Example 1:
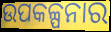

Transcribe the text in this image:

ଉପକଳ୍ପନାର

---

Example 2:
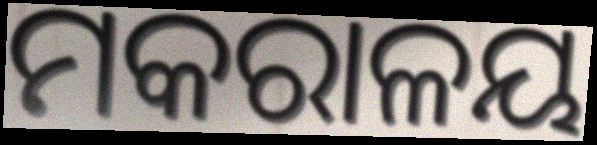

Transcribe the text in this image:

ମକରାଳୟ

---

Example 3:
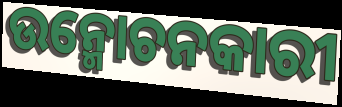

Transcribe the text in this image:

ଉନ୍ମୋଚନକାରୀ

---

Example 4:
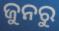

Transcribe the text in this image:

ଜୁନରୁ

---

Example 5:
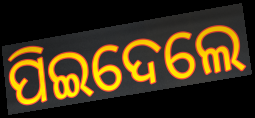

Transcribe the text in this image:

ପିଇଦେଲେ